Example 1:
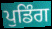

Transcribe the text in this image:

ਪੁਡਿੰਗ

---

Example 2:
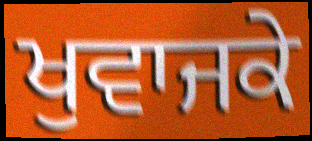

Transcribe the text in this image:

ਖੁਵਾਜਕੇ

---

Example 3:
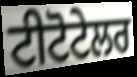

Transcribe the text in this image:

ਟੀਟੋਟੇਲਰ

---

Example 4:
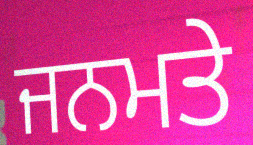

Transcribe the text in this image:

ਜਨਮਤੇ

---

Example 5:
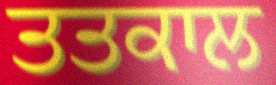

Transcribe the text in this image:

ਤਤਕਾਲ